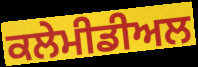
ਕਲੇਮੀਡੀਅਲ